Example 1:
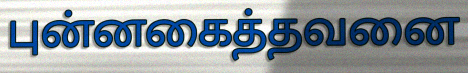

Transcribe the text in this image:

புன்னகைத்தவனை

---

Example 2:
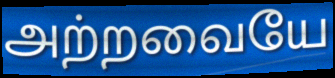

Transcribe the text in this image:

அற்றவையே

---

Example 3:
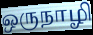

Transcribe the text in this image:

ஒருநாழி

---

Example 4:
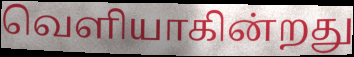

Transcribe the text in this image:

வெளியாகின்றது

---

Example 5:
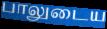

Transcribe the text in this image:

பாலுடைய